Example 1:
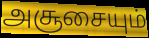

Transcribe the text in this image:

அசூசையும்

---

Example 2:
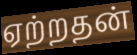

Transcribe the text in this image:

ஏற்றதன்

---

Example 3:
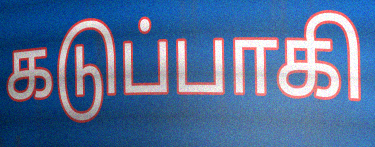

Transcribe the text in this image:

கடுப்பாகி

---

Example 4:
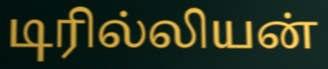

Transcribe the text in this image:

டிரில்லியன்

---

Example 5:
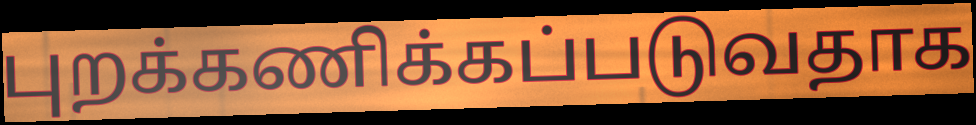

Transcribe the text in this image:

புறக்கணிக்கப்படுவதாக